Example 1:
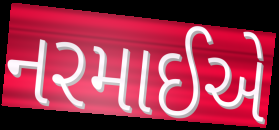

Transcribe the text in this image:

નરમાઈએ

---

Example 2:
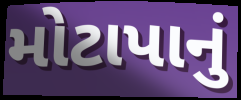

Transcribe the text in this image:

મોટાપાનું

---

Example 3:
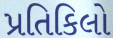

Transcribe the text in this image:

પ્રતિકિલો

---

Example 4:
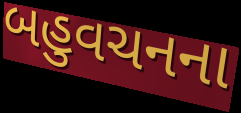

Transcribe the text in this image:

બહુવચનના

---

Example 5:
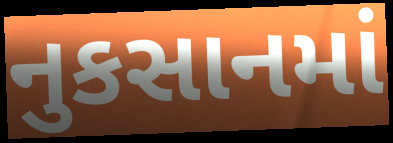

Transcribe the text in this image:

નુકસાનમાં